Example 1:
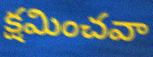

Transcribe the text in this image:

క్షమించవా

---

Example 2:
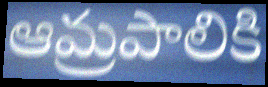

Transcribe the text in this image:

ఆమ్రపాలికి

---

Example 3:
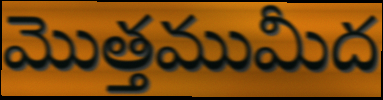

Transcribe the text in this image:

మొత్తముమీద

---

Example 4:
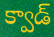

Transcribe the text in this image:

క్వాడ్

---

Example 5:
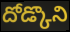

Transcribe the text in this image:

దోడ్కొని